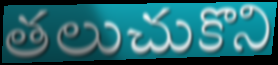
తలుచుకొని